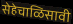
सेहेचाळिसावी